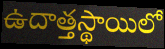
ఉదాత్తస్థాయిలో